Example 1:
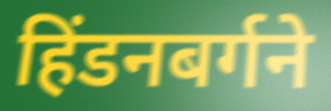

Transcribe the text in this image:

हिंडनबर्गने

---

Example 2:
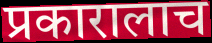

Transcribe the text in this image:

प्रकारालाच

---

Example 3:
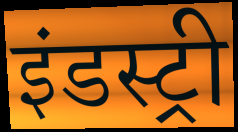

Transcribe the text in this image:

इंडस्ट्री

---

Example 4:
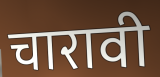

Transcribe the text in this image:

चारावी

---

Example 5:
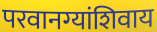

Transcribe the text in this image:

परवानग्यांशिवाय